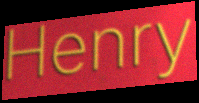
Henry